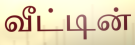
வீட்டின்